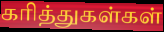
கரித்துகள்கள்